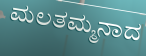
ಮಲತಮ್ಮನಾದ